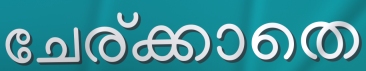
ചേര്ക്കാതെ